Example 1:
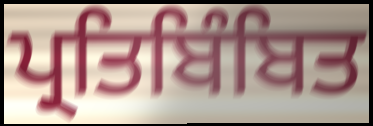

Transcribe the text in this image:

ਪ੍ਰਤਿਬਿੰਬਿਤ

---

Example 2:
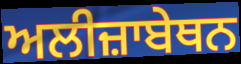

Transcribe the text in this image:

ਅਲੀਜ਼ਾਬੇਥਨ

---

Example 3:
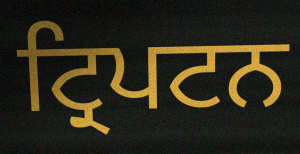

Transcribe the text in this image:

ਟ੍ਰਿਪਟਨ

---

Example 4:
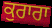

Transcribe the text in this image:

ਕੁਰਾਰਾ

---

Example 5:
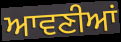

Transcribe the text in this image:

ਆਵਣੀਆਂ